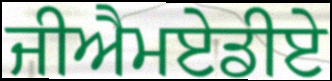
ਜੀਐਮਏਡੀਏ